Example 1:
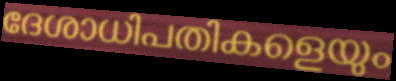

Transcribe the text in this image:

ദേശാധിപതികളെയും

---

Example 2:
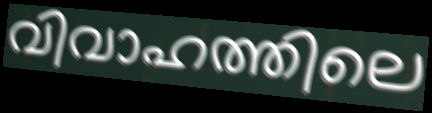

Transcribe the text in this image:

വിവാഹത്തിലെ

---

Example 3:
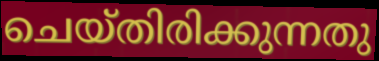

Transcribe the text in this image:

ചെയ്തിരിക്കുന്നതു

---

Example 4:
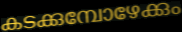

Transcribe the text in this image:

കടക്കുമ്പോഴേക്കും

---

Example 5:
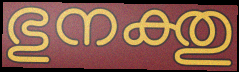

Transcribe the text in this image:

ഭുനക്തു